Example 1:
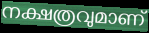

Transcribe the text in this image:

നക്ഷത്രവുമാണ്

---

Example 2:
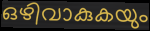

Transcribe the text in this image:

ഒഴിവാകുകയും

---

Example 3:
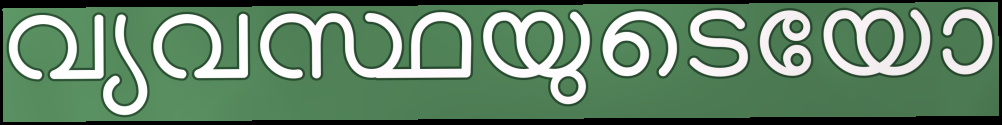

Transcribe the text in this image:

വ്യവസ്ഥയുടെയോ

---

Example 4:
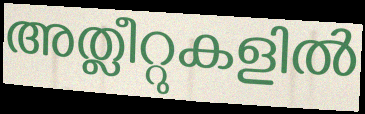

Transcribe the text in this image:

അത്ലീറ്റുകളിൽ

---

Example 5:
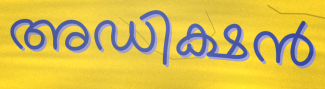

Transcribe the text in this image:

അഡിക്ഷൻ